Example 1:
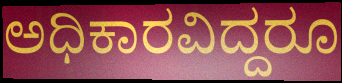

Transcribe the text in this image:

ಅಧಿಕಾರವಿದ್ದರೂ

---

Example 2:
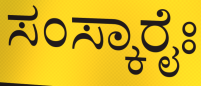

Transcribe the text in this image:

ಸಂಸ್ಕಾರೈಃ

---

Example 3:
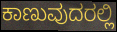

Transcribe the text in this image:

ಕಾಣುವುದರಲ್ಲಿ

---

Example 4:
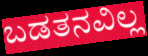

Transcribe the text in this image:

ಬಡತನವಿಲ್ಲ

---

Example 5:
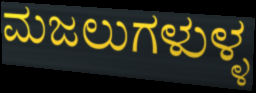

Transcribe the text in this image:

ಮಜಲುಗಳುಳ್ಳ